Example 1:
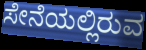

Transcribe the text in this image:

ಸೇನೆಯಲ್ಲಿರುವ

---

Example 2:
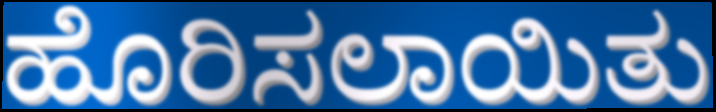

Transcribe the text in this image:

ಹೊರಿಸಲಾಯಿತು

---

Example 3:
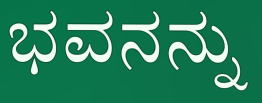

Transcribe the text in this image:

ಭವನನ್ನು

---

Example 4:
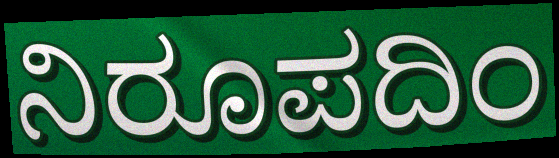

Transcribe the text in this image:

ನಿರೂಪದಿಂ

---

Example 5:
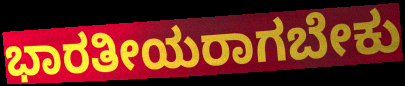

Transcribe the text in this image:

ಭಾರತೀಯರಾಗಬೇಕು